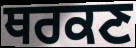
ਥਰਕਣ